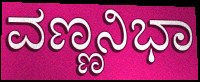
ವಣ್ಣನಿಭಾ